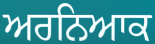
ਅਰਨਿਆਕ